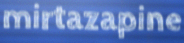
mirtazapine